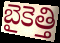
బైకెత్తి